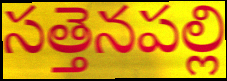
సత్తెనపల్లి